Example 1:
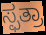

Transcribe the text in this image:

ಸ್ಫತ್ರಾ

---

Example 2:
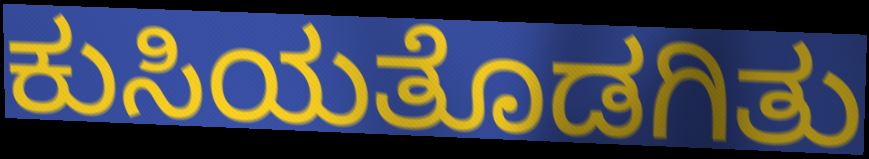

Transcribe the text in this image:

ಕುಸಿಯತೊಡಗಿತು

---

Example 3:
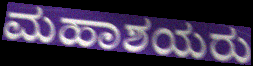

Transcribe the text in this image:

ಮಹಾಶಯರು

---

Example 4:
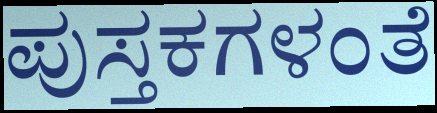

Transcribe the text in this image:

ಪುಸ್ತಕಗಳಂತೆ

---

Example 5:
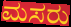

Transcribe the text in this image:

ಮಸರು